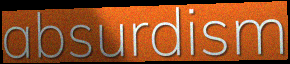
absurdism